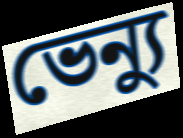
ভেন্যু